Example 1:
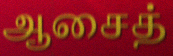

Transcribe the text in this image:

ஆசைத்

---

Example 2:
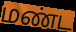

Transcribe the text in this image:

மண்ட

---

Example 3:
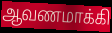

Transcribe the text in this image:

ஆவணமாக்கி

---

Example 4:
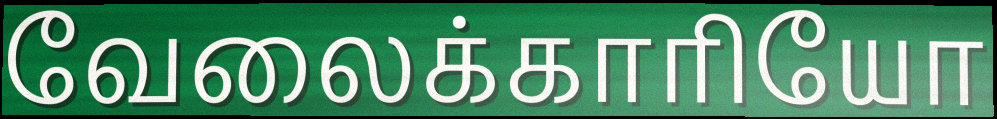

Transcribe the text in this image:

வேலைக்காரியோ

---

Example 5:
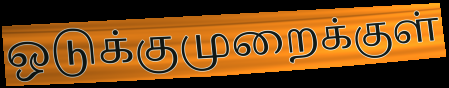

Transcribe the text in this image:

ஒடுக்குமுறைக்குள்